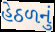
હેઠળનું